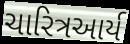
ચારિત્રઆર્ય